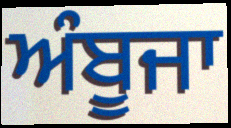
ਅੰਬੂਜਾ